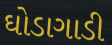
ઘોડાગાડી